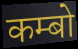
कम्बो